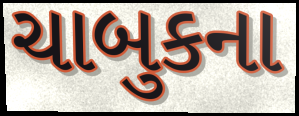
ચાબુકના